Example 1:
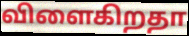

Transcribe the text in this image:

விளைகிறதா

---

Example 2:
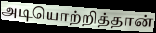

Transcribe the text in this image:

அடியொற்றித்தான்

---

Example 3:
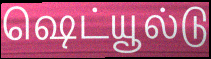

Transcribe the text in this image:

ஷெட்யூல்டு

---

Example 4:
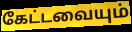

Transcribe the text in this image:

கேட்டவையும்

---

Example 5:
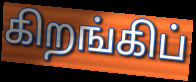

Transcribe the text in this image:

கிறங்கிப்